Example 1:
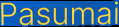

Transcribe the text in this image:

Pasumai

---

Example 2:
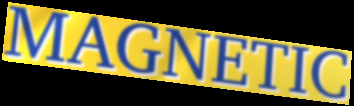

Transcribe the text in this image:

MAGNETIC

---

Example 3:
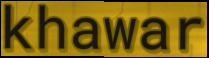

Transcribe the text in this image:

khawar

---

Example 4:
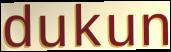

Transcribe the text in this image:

dukun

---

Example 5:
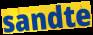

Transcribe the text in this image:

sandte